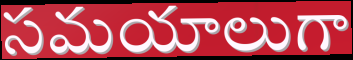
సమయాలుగా